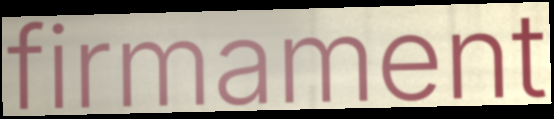
firmament